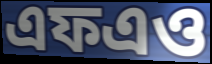
এফএও